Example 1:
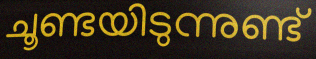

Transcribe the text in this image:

ചൂണ്ടയിടുന്നുണ്ട്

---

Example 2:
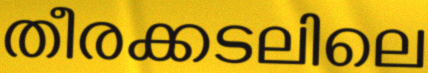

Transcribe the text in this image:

തീരക്കടലിലെ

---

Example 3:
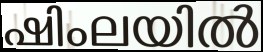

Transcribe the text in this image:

ഷിംലയിൽ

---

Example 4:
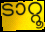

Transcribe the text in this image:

ടാറ്റൂ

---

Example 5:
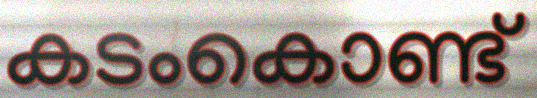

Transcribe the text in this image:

കടംകൊണ്ട്